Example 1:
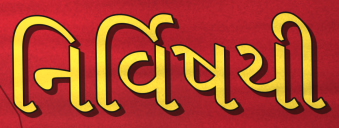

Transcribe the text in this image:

નિર્વિષયી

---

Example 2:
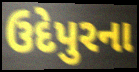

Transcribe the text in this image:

ઉદેપુરના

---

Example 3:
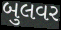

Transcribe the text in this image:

બુલવર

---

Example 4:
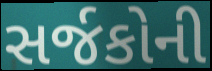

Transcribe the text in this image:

સર્જકોની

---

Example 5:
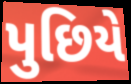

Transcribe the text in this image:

પુછિયે